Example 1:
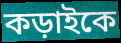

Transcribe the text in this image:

কড়াইকে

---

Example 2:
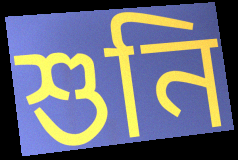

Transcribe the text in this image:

শুনি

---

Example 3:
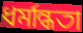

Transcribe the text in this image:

ধর্মান্ধতা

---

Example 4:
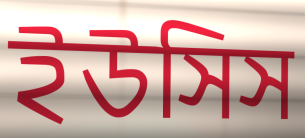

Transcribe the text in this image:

ইউসিস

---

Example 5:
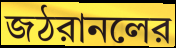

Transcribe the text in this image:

জঠরানলের